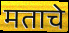
मताचे